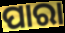
ପାରା